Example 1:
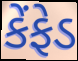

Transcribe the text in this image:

કેંફેડ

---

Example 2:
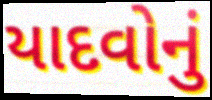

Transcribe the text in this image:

યાદવોનું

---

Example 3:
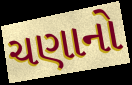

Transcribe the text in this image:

ચણાનો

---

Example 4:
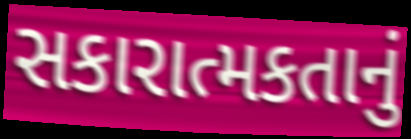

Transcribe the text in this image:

સકારાત્મકતાનું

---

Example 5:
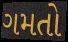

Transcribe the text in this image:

ગમતો